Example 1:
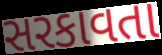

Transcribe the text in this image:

સરકાવતા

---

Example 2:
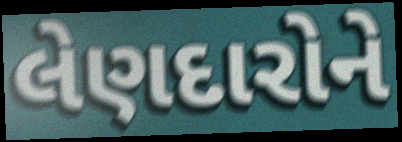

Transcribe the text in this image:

લેણદારોને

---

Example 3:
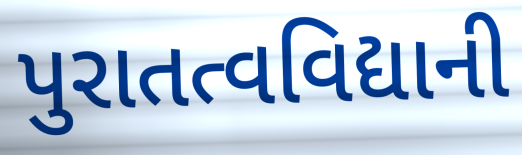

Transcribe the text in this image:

પુરાતત્વવિદ્યાની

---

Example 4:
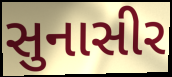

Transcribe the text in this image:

સુનાસીર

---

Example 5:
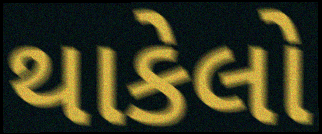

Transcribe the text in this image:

થાકેલો